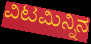
ವಿಟಮಿನ್ನಿನ